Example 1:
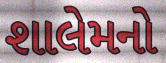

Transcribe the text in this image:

શાલેમનો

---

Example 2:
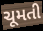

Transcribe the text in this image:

ચૂમતી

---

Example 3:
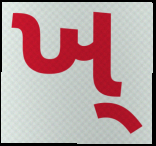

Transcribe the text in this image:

ખ્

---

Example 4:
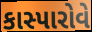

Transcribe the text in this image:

કાસ્પારોવે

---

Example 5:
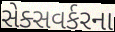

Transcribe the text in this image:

સેક્સવર્કરના